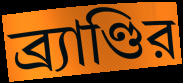
ব্র্যাণ্ডির